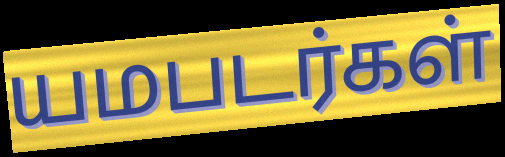
யமபடர்கள்